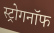
स्ट्रोगनॉफ